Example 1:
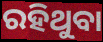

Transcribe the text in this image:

ରହିଥୁବା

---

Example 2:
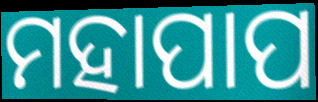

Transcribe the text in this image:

ମହାପାପ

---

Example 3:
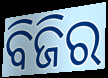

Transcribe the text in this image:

ବିଜିର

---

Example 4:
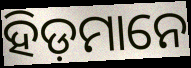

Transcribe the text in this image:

ହିଡ଼ମାନେ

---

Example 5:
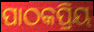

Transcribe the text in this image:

ପାଠକପ୍ରିୟ